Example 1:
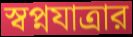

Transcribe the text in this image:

স্বপ্নযাত্রার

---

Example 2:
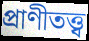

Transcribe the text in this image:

প্রাণীতত্ত্ব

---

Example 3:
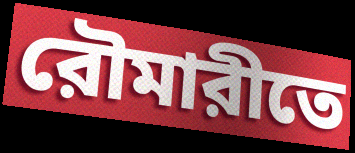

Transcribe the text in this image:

রৌমারীতে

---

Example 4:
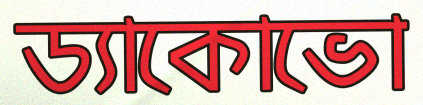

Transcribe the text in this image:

ড্যাকোভো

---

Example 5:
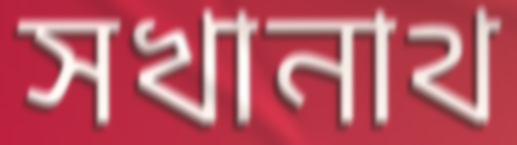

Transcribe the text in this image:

সখানাথ